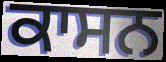
ਕਾਸਨ